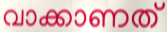
വാക്കാണത്